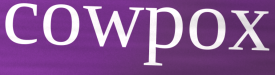
cowpox